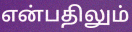
என்பதிலும்